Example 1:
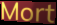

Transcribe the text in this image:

Mort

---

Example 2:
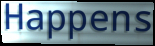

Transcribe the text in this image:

Happens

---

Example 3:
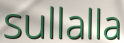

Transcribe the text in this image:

sullalla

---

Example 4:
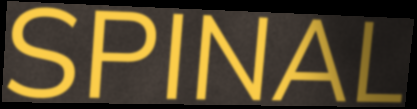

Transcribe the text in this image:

SPINAL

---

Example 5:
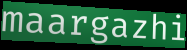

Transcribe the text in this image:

maargazhi